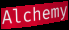
Alchemy